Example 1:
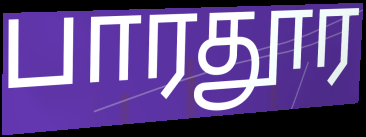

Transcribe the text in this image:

பாரதூர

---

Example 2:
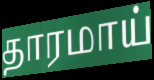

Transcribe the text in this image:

தாரமாய்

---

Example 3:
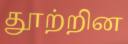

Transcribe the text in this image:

தூற்றின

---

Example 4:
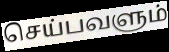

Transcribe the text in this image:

செய்பவளும்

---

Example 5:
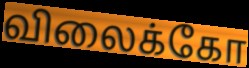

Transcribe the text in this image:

விலைக்கோ